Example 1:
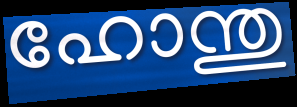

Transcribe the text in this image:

ഹോന്തു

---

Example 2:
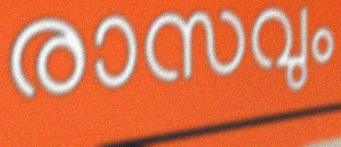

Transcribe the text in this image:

രാസവും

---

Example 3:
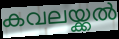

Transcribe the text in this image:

കവലയ്ക്കൽ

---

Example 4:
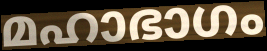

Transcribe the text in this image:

മഹാഭാഗം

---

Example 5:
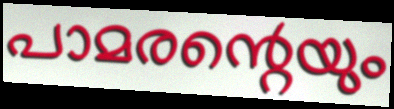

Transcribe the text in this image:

പാമരന്റെയും